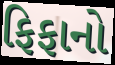
ફિફાનો